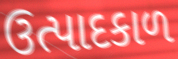
ઉત્પાદકાળ